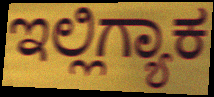
ಇಲ್ಲಿಗ್ಯಾಕ